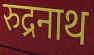
रुद्रनाथ